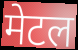
मेटल